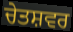
ਚੇਤਸ਼ਵਰ